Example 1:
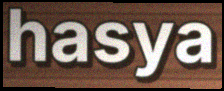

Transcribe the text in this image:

hasya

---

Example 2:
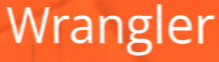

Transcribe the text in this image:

Wrangler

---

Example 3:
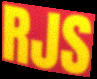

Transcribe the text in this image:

RJS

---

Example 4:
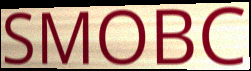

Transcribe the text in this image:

SMOBC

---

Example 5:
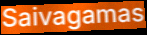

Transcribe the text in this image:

Saivagamas